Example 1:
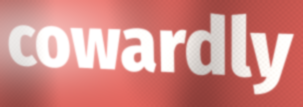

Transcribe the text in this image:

cowardly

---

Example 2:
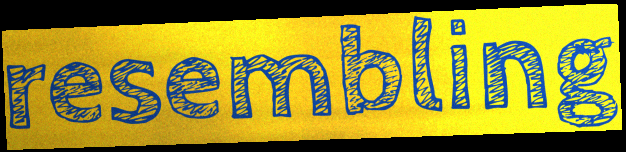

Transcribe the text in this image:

resembling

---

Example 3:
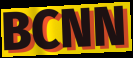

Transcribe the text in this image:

BCNN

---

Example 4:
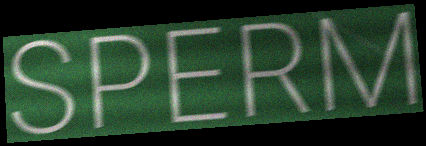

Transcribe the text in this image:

SPERM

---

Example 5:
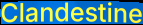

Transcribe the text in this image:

Clandestine